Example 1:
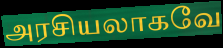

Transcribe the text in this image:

அரசியலாகவே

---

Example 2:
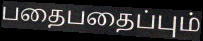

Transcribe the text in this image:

பதைபதைப்பும்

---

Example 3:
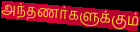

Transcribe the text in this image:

அந்தணர்களுக்கும்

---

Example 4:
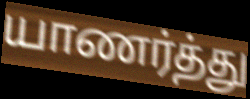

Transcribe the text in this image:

யாணர்த்து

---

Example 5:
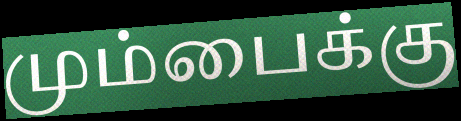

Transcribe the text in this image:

மும்பைக்கு